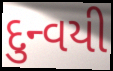
દુન્વયી